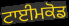
ਟਾਈਮਕੋਡ